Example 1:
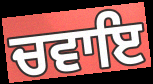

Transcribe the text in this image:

ਚਵਾਇ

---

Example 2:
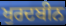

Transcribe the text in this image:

ਖੁਰਦਬੀਨ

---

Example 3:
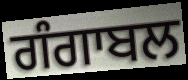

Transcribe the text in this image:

ਗੰਗਾਬਲ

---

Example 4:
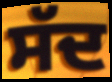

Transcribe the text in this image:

ਸੱਦ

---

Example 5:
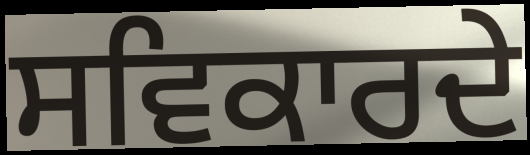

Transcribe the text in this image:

ਸਵਿਕਾਰਦੇ